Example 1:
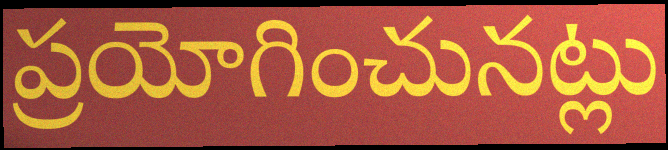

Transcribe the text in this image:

ప్రయోగించునట్లు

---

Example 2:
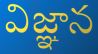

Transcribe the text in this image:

విజ్ఞాన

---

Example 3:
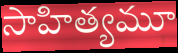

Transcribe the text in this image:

సాహిత్యమూ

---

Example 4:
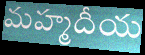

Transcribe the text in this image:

మహ్మదీయ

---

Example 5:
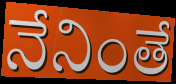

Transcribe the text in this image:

నేనింతే